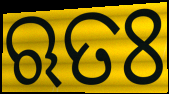
ଋତଃ